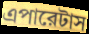
এপারেটাস